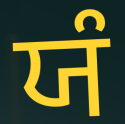
ਯੰ